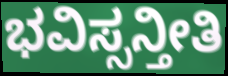
ಭವಿಸ್ಸನ್ತೀತಿ